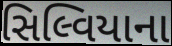
સિલ્વિયાના